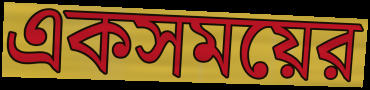
একসময়ের